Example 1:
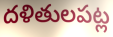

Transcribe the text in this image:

దళితులపట్ల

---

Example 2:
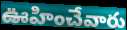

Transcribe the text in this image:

ఊహించేవారు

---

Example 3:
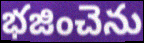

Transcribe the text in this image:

భజించెను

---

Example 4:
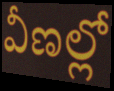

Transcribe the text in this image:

వీణల్లో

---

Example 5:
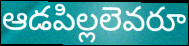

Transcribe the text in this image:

ఆడపిల్లలెవరూ